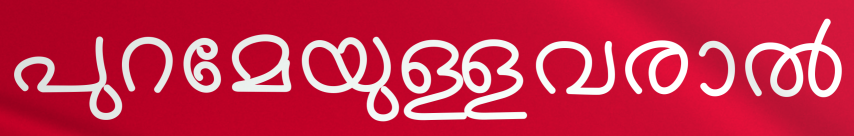
പുറമേയുള്ളവരാൽ